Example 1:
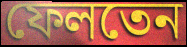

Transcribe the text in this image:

ফেলতেন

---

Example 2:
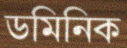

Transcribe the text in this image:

ডমিনিক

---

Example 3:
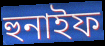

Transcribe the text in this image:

হুনাইফ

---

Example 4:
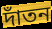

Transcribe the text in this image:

দাঁতন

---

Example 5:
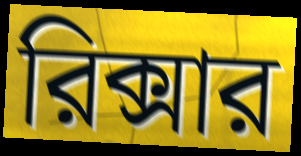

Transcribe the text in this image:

রিক্সার